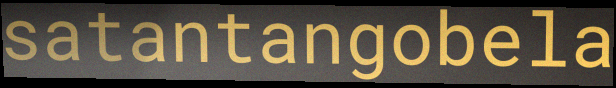
satantangobela